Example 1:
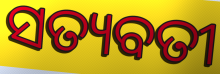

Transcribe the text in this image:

ସତ୍ୟବତୀ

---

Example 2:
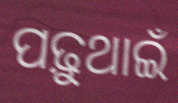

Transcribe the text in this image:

ପଢ଼ୁଥାଇଁ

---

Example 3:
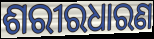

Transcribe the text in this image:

ଶରୀରଧାରଣ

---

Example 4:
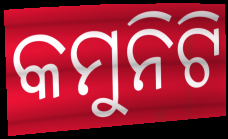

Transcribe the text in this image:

କମୁନିଟି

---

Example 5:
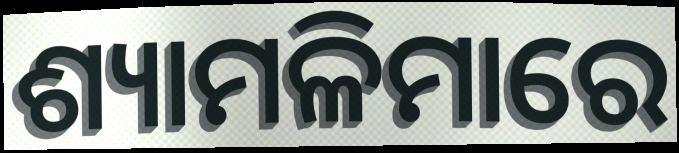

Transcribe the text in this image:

ଶ୍ୟାମଳିମାରେ